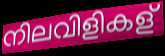
നിലവിളികള്